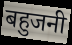
बहुजनी